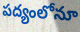
పద్యంలోనూ